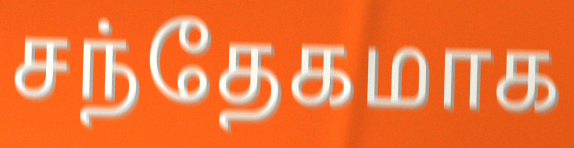
சந்தேகமாக